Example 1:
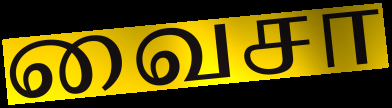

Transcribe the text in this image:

வைசா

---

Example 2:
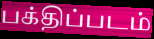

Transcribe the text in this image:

பக்திப்படம்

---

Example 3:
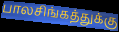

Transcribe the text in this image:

பாலசிங்கத்துக்கு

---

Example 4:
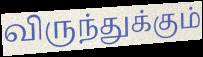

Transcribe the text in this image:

விருந்துக்கும்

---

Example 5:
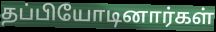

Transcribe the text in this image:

தப்பியோடினார்கள்